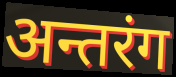
अन्तरंग